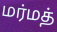
மர்மத்